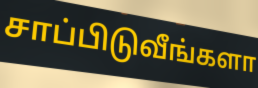
சாப்பிடுவீங்களா